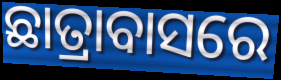
ଛାତ୍ରାବାସରେ